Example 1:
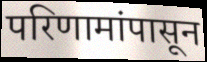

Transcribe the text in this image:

परिणामांपासून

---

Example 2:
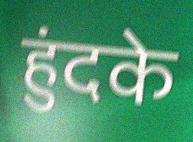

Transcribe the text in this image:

हुंदके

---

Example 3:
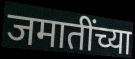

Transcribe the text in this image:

जमातींच्या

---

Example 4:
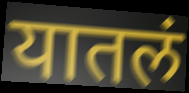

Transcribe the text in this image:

यातलं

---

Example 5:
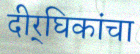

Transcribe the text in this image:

दीर्घिकांचा